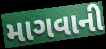
માગવાની